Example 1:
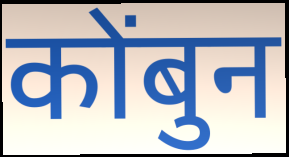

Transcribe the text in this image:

कोंबुन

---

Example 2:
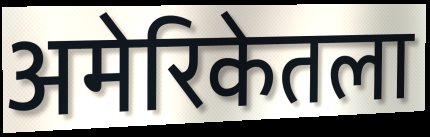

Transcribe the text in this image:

अमेरिकेतला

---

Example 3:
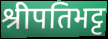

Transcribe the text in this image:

श्रीपतिभट्ट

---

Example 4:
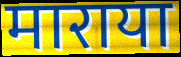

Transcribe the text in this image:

माराया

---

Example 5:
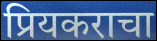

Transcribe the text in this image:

प्रियकराचा